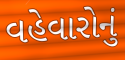
વહેવારોનું